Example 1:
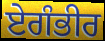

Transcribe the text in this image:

ਏਗੰਭੀਰ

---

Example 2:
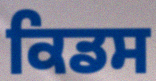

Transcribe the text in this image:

ਕਿਡਸ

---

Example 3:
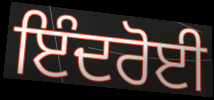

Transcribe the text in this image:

ਇੰਦਰੋਈ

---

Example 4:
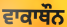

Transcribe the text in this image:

ਵਾਕਾਥੌਨ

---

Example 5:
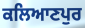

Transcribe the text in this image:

ਕਲਿਆਣਪੁਰ